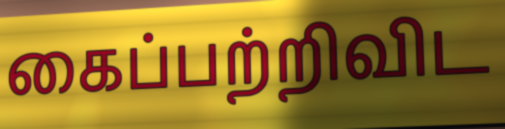
கைப்பற்றிவிட